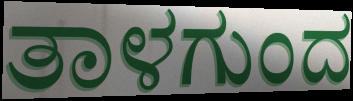
ತಾಳಗುಂದ